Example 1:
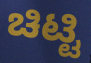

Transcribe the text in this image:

ಚಿಟ್ಟಿ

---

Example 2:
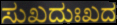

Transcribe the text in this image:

ಸುಖದುಃಖದ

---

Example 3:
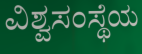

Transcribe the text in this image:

ವಿಶ್ವಸಂಸ್ಥೆಯ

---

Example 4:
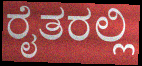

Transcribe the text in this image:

ರೈತರಲ್ಲಿ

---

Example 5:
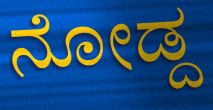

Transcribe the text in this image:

ನೋಡ್ದ